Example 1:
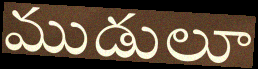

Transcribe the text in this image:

ముడులూ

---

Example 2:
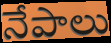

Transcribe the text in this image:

నేపాలు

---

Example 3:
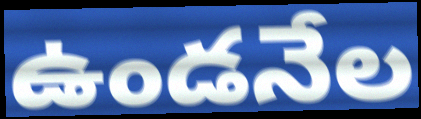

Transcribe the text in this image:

ఉండనేల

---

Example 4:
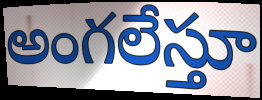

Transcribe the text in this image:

అంగలేస్తూ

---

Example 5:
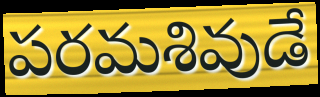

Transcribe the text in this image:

పరమశివుడే